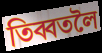
তিব্বতলৈ